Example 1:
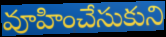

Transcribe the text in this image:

వూహించేసుకుని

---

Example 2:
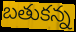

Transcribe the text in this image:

బతుకన్న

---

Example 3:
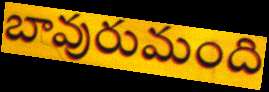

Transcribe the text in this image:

బావురుమంది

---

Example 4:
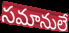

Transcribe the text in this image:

సమానులే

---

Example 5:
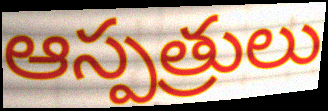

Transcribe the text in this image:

ఆస్పత్రులు